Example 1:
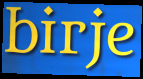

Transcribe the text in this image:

birje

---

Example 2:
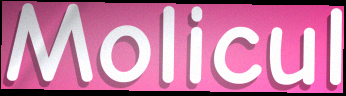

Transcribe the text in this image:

Molicul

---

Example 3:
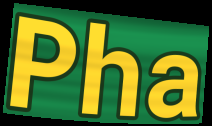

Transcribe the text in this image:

Pha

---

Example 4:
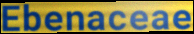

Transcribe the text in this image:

Ebenaceae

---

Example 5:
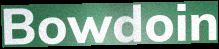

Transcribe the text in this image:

Bowdoin